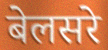
बेलसरे